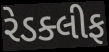
રેડક્લીફ